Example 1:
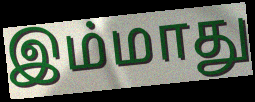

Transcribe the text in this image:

இம்மாது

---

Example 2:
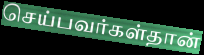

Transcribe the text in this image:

செய்பவர்கள்தான்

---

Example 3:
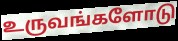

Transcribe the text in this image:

உருவங்களோடு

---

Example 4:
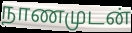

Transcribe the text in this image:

நாணமுடன்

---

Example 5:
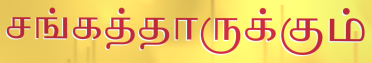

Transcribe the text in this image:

சங்கத்தாருக்கும்